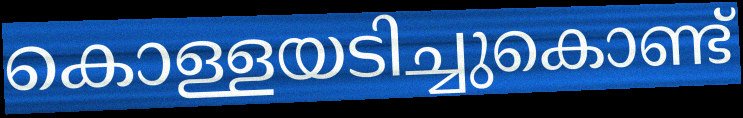
കൊള്ളയടിച്ചുകൊണ്ട്